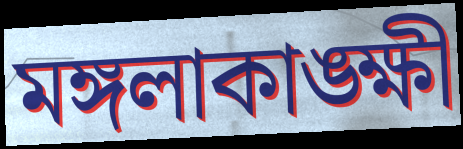
মঙ্গলাকাঙ্ক্ষী